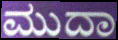
ಮುದಾ